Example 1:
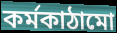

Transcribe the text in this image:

কর্মকাঠামো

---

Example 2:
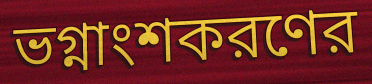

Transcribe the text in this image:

ভগ্নাংশকরণের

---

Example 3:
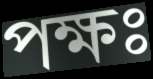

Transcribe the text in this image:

পক্ষঃ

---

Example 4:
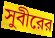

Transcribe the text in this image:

সুবীরের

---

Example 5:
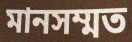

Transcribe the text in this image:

মানসম্মত